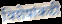
विशेषांकही